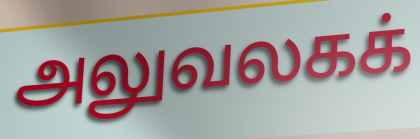
அலுவலகக்